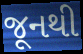
જૂનથી